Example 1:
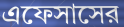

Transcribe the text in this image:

এফেসাসের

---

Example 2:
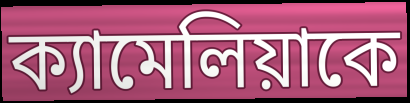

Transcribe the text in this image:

ক্যামেলিয়াকে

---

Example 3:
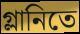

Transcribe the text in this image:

গ্লানিতে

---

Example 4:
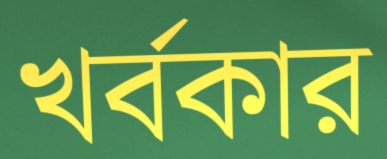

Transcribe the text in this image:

খর্বকার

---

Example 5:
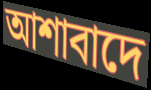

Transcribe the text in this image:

আশাবাদে